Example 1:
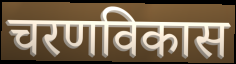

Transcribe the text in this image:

चरणविकास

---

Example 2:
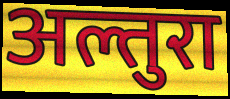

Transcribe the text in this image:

अल्तुरा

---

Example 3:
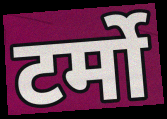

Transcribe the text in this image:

टर्मो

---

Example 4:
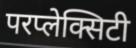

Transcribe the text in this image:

परप्लेक्सिटी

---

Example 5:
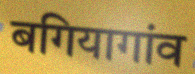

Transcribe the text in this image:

बगियागांव